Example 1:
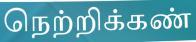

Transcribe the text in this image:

நெற்றிக்கண்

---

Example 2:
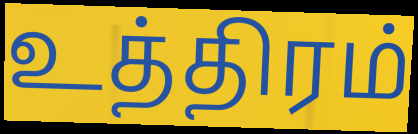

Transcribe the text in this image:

உத்திரம்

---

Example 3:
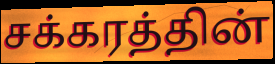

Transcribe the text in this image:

சக்கரத்தின்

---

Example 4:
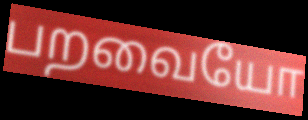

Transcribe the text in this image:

பறவையோ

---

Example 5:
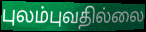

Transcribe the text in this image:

புலம்புவதில்லை